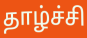
தாழ்ச்சி